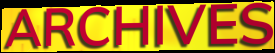
ARCHIVES